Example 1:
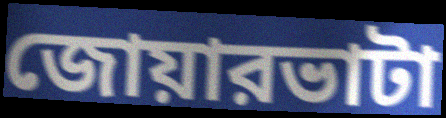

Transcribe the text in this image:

জোয়ারভাটা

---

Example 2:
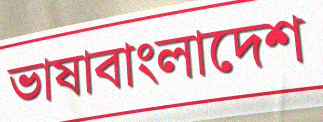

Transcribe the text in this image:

ভাষাবাংলাদেশ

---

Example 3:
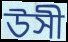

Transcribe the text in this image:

উসী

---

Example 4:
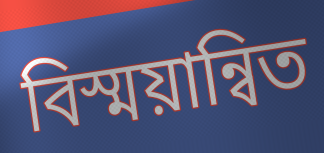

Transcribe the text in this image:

বিস্ময়ান্বিত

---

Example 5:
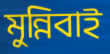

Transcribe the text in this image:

মুন্নিবাই